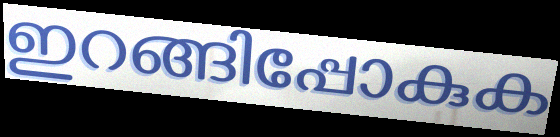
ഇറങ്ങിപ്പോകുക